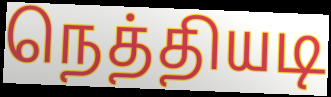
நெத்தியடி